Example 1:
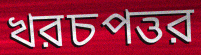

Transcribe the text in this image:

খরচপত্তর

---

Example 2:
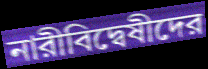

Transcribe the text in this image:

নারীবিদ্বেষীদের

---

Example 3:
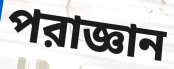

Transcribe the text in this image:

পরাজ্ঞান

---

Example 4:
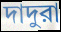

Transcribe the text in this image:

দাদুরা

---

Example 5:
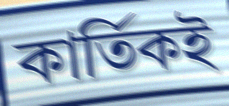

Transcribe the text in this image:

কার্তিকই